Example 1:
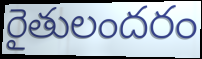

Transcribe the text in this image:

రైతులందరం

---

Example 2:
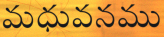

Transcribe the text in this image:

మధువనము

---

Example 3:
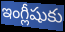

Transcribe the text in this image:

ఇంగ్లీషుకు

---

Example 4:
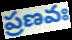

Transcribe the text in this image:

ప్రణవః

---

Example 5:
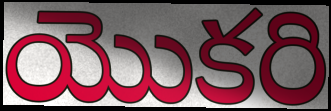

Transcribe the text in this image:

యొకరి